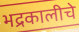
भद्रकालीचे